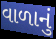
વાળાનું